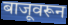
बाजूवरून